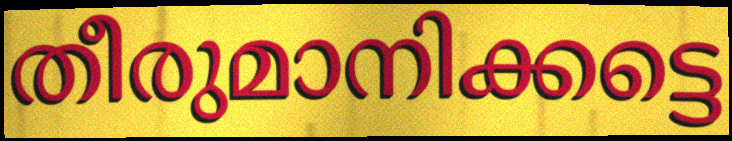
തീരുമാനിക്കട്ടെ